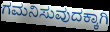
ಗಮನಿಸುವುದಕ್ಕಾಗಿ